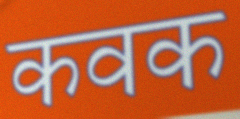
कवक